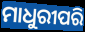
ମାଧୁରୀପରି